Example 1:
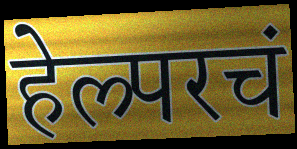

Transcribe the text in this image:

हेल्परचं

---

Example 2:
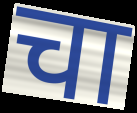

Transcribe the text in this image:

चा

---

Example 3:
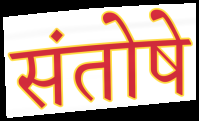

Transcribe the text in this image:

संतोषे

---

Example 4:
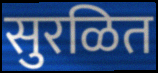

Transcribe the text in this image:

सुरळित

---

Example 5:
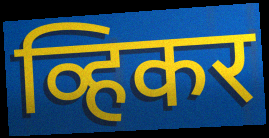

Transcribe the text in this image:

व्हिकर